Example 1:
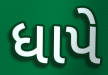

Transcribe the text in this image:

ધાપે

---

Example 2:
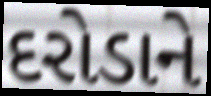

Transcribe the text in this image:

દરોડાને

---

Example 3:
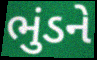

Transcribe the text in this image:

ભુંડને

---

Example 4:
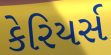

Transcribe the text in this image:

કેરિયર્સ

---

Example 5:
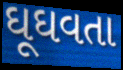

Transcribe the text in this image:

ઘૂઘવતા